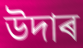
উদাৰ